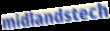
midlandstech